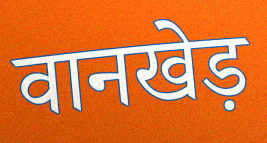
वानखेड़